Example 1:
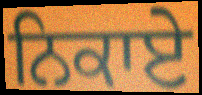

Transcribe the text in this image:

ਨਿਕਾਏ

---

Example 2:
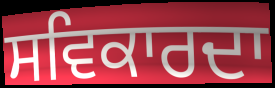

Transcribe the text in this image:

ਸਵਿਕਾਰਦਾ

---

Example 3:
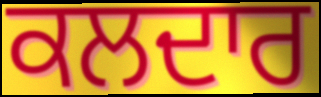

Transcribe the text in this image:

ਕਲਦਾਰ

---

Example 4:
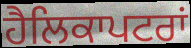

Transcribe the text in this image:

ਹੈਲਿਕਾਪਟਰਾਂ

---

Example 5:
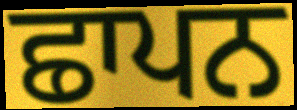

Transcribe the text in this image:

ਛਾਪਨ